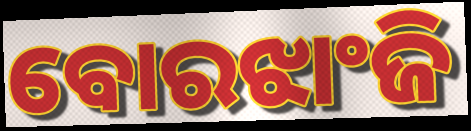
ବୋରଝାଂଜି